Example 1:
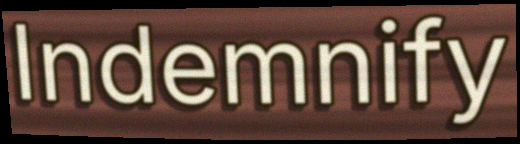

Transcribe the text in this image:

Indemnify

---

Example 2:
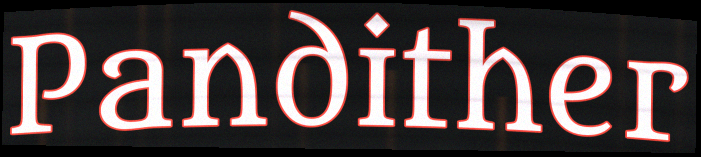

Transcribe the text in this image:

Pandither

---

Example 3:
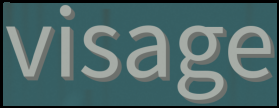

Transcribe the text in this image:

visage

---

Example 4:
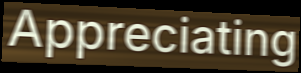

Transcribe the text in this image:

Appreciating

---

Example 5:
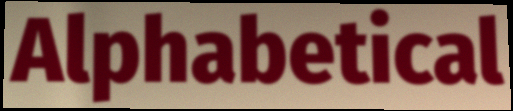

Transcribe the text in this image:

Alphabetical